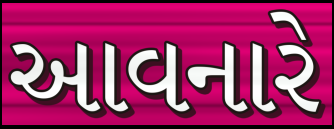
આવનારે